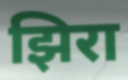
झिरा